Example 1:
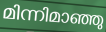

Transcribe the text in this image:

മിന്നിമാഞ്ഞു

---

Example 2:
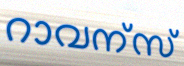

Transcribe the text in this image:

റാവന്സ്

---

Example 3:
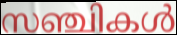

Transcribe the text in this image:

സഞ്ചികൾ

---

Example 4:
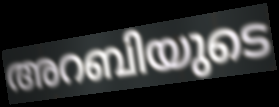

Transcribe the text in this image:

അറബിയുടെ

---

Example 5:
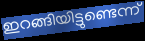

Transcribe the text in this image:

ഇറങ്ങിയിട്ടുണ്ടെന്ന്